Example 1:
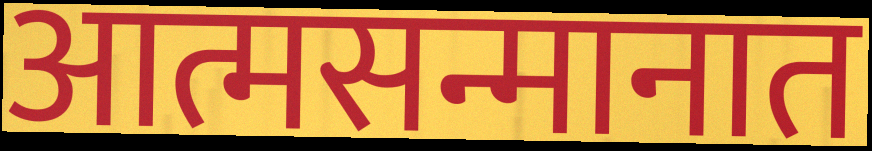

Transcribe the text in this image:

आत्मसन्मानात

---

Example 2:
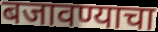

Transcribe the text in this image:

बजावण्याचा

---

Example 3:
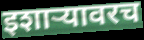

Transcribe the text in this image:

इशाऱ्यावरच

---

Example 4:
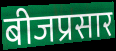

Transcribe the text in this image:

बीजप्रसार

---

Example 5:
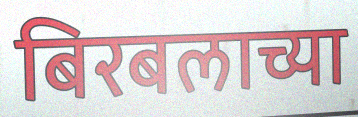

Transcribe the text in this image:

बिरबलाच्या